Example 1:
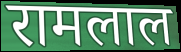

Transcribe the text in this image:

रामलाल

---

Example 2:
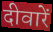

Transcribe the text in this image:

दीवारें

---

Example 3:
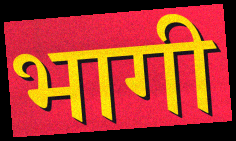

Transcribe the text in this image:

भागी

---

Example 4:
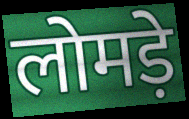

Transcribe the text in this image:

लोमड़े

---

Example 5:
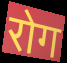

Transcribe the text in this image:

रोग